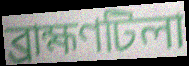
ব্রাহ্মণটিলা